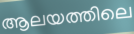
ആലയത്തിലെ